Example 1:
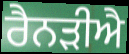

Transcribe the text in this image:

ਰੈਨੜੀਐ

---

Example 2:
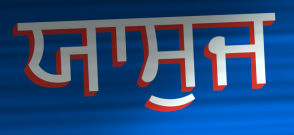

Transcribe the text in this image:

ਯਾਸੁਜ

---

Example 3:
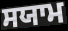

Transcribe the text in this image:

ਸਯਾਮ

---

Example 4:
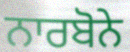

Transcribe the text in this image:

ਨਾਰਬੋਨੇ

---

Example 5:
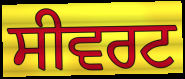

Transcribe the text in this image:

ਸੀਵਰਟ